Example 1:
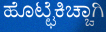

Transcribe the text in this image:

ಹೊಟ್ಟೆಕಿಚ್ಚಾಗಿ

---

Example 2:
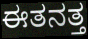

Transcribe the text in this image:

ಈತನತ್ತ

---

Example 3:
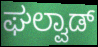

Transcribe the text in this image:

ಘಲ್ವಾಡ್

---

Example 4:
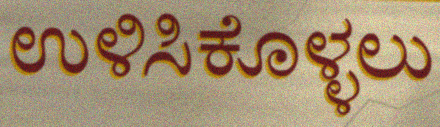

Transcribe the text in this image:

ಉಳಿಸಿಕೊಳ್ಳಲು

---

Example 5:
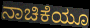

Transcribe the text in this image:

ನಾಚಿಕೆಯೂ